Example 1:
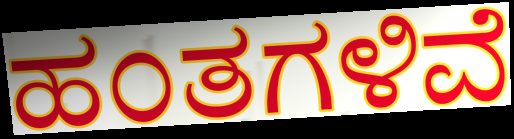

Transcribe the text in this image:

ಹಂತಗಳಿವೆ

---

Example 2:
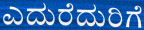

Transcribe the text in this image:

ಎದುರೆದುರಿಗೆ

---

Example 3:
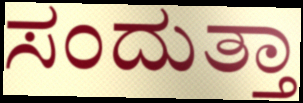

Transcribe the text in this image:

ಸಂದುತ್ತಾ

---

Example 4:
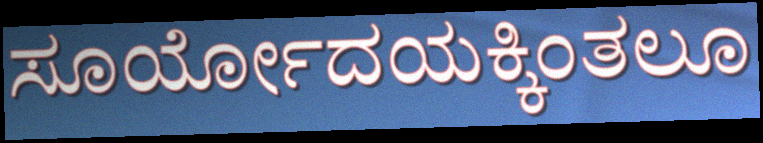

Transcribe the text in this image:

ಸೂರ್ಯೋದಯಕ್ಕಿಂತಲೂ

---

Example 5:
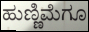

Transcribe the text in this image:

ಹುಣ್ಣಿಮೆಗೂ